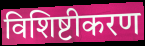
विशिष्टीकरण